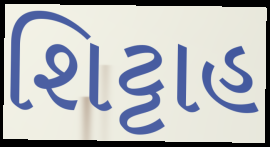
શિટ્ટાહ